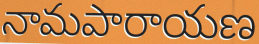
నామపారాయణ